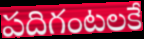
పదిగంటలకే